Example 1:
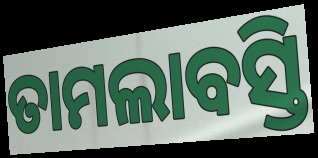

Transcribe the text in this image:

ତାମଲାବସ୍ତି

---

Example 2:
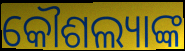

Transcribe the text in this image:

କୌଶଲ୍ୟାଙ୍କ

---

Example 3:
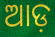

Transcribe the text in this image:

ଆଡ଼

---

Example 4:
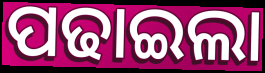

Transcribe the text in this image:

ପଢାଇଲା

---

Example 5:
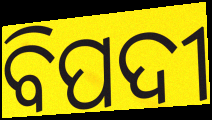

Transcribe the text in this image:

ବିପଦୀ